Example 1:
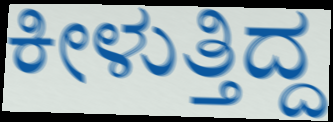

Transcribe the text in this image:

ಕೀಳುತ್ತಿದ್ದ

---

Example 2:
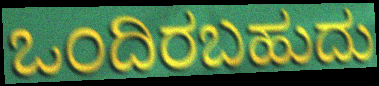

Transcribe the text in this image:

ಒಂದಿರಬಹುದು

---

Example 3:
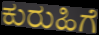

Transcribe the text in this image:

ಕುರುಹಿಗೆ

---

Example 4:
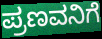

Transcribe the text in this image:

ಪ್ರಣವನಿಗೆ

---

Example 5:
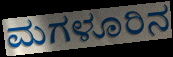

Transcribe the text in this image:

ಮಗಳೂರಿನ